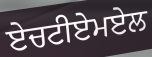
ਏਚਟੀਏਮਏਲ